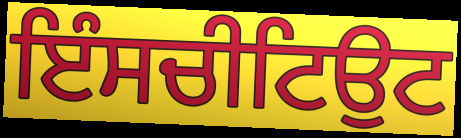
ਇੰਸਚੀਟਿਉਟ